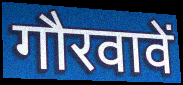
गौरवावें